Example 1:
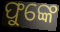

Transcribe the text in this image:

ଫୁଙ୍କେ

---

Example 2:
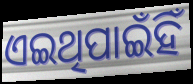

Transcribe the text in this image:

ଏଇଥିପାଇଁହିଁ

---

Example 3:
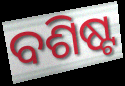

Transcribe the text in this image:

ବଶିଷ୍ଟ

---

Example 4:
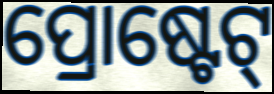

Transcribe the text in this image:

ପ୍ରୋଷ୍ଟେଟ୍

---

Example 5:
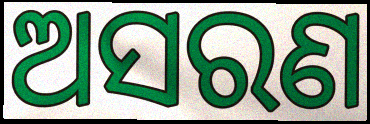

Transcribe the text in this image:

ଅସରଣ